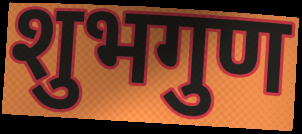
शुभगुण